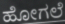
ಹೋಗಲೆ